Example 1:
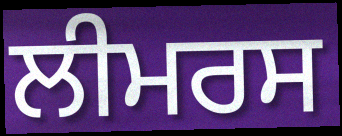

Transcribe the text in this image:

ਲੀਮਰਸ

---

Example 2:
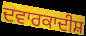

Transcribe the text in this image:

ਦਵਾਰਕਾਦੀਸ਼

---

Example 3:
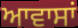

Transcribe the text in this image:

ਆਵਾਸਾਂ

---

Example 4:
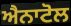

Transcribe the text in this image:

ਐਨਾਟੋਲ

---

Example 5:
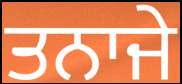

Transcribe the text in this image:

ਤਨਾਜੇ